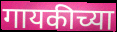
गायकीच्या